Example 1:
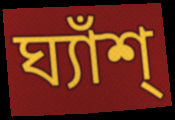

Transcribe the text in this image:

ঘ্যাঁশ্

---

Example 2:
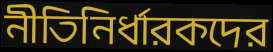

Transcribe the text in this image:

নীতিনির্ধারকদের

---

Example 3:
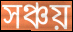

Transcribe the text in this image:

সঞ্চয়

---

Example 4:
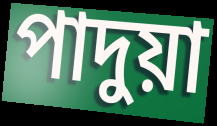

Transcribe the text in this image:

পাদুয়া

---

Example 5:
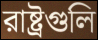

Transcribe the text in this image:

রাষ্ট্রগুলি